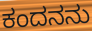
ಕಂದನನು